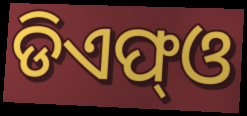
ଡିଏଫ୍ଓ